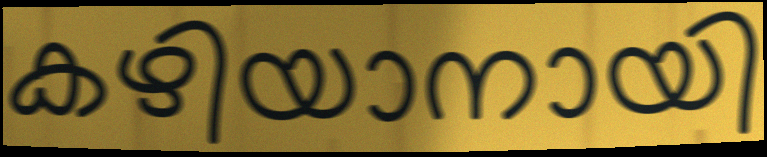
കഴിയാനായി